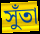
সুঁতা